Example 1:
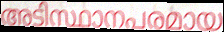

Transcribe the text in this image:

അടിസ്ഥാനപരമായ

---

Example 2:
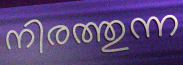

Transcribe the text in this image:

നിരത്തുന്ന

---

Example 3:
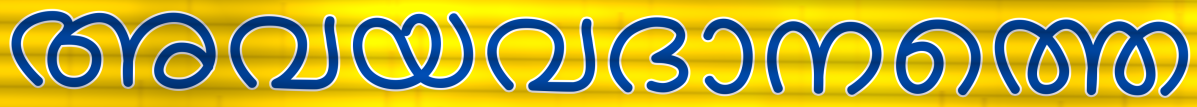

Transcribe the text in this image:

അവയവദാനത്തെ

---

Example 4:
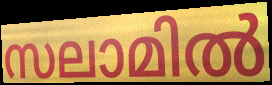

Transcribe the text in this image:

സലാമിൽ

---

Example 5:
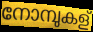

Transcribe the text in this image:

നോമ്പുകള്